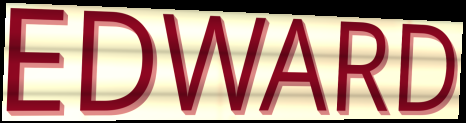
EDWARD